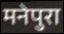
मनेपुरा